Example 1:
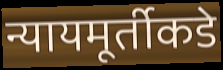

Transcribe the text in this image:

न्यायमूर्तीकडे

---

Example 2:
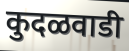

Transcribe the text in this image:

कुदळवाडी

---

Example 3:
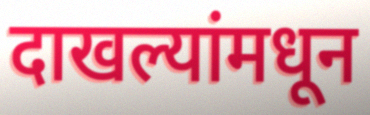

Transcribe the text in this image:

दाखल्यांमधून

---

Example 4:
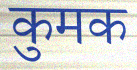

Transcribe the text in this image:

कुमक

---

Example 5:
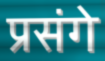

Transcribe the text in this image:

प्रसंगे